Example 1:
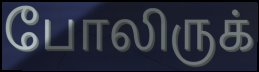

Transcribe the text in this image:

போலிருக்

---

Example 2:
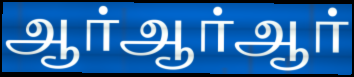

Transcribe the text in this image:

ஆர்ஆர்ஆர்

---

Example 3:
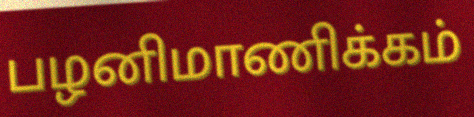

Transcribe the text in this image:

பழனிமாணிக்கம்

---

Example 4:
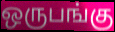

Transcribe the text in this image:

ஒருபங்கு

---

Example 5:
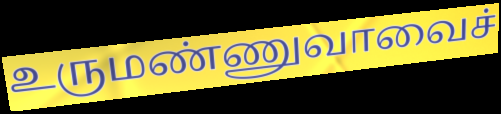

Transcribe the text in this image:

உருமண்ணுவாவைச்